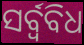
ସର୍ବ୍ବବିଧ